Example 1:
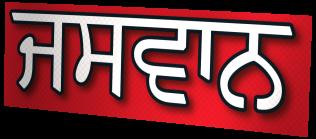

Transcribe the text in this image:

ਜਸਵਾਨ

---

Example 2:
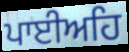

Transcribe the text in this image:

ਪਾਈਅਹਿ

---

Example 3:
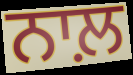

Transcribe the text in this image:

ਨਾਲ਼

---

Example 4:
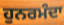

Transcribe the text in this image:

ਹੁਨਰਮੰਦਾ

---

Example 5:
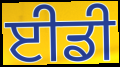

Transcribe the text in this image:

ਈਡੀ